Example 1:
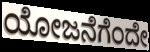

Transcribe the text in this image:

ಯೋಜನೆಗೆಂದೇ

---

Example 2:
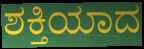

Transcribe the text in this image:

ಶಕ್ತಿಯಾದ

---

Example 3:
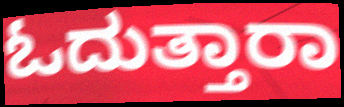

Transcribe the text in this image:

ಓದುತ್ತಾರಾ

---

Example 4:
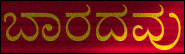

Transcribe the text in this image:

ಬಾರದವು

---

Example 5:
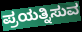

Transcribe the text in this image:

ಪ್ರಯತ್ನಿಸುವ